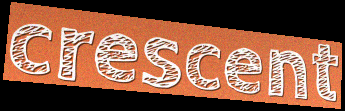
crescent